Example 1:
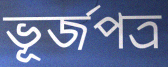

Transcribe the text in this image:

ভূর্জপত্র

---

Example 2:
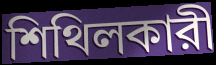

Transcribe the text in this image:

শিথিলকারী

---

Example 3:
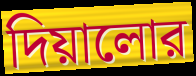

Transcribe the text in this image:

দিয়ালোর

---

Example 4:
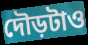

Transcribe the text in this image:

দৌড়টাও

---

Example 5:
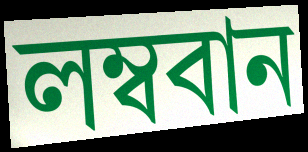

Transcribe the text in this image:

লম্ববান